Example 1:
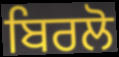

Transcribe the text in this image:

ਬਿਰਲੋ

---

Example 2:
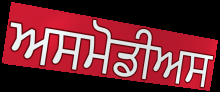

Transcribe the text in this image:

ਅਸਮੋਡੀਅਸ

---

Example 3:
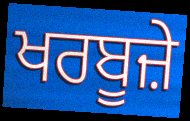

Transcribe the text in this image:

ਖਰਬੂਜ਼ੇ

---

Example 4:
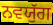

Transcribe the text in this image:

ਨਵਯੁੱਗ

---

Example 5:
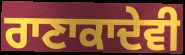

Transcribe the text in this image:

ਰਾਣਾਕਾਦੇਵੀ